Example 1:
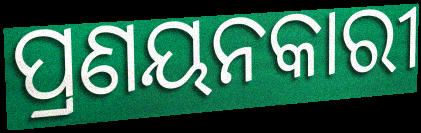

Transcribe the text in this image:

ପ୍ରଣୟନକାରୀ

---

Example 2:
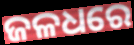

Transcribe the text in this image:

ଜଳଧରେ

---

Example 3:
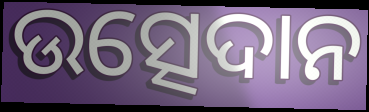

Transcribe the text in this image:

ଉତ୍ସେଦାନ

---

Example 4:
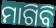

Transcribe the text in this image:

ମାଗିବି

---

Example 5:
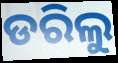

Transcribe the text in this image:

ଡରିଲୁ